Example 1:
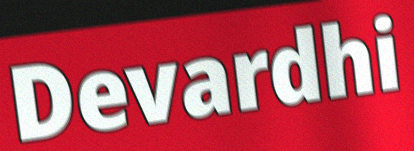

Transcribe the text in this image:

Devardhi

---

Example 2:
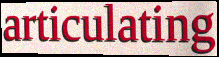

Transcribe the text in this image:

articulating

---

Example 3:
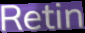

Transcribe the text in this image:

Retin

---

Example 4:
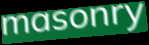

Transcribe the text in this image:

masonry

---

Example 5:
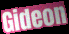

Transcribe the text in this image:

Gideon